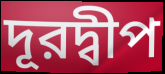
দূরদ্বীপ